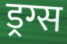
ड्रग्स